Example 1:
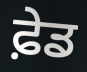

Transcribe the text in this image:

ਫ਼ੇਡ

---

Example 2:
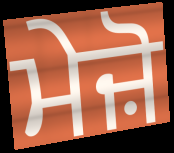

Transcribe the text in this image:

ਮੇਜ਼ੋ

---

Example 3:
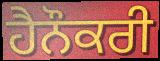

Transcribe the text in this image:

ਹੈਨੌਕਰੀ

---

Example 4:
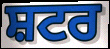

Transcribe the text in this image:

ਸ਼ਟਰ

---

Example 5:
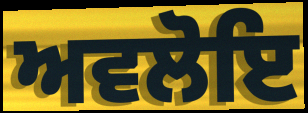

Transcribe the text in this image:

ਅਵਲੋਇ